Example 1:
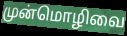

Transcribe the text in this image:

முன்மொழிவை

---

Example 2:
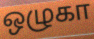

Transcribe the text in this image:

ஒழுகா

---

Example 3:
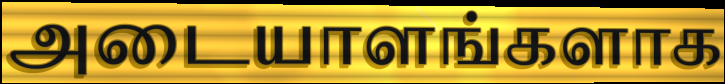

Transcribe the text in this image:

அடையாளங்களாக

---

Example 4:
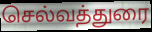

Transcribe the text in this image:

செல்வத்துரை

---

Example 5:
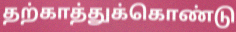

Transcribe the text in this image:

தற்காத்துக்கொண்டு